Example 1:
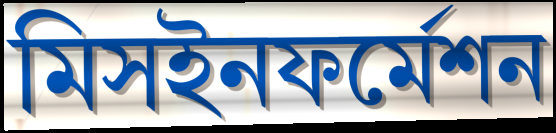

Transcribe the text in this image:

মিসইনফর্মেশন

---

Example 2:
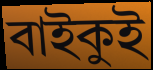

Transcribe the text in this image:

বাইকুই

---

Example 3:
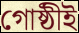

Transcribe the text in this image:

গোষ্ঠীই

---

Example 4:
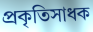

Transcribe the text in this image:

প্রকৃতিসাধক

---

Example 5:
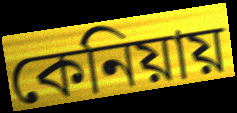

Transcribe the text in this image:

কেনিয়ায়